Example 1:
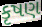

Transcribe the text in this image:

કૃષણ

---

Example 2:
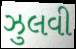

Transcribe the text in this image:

ઝુલવી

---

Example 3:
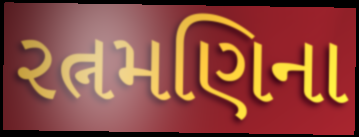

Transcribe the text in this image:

રત્નમણિના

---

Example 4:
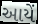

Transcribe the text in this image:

આયેં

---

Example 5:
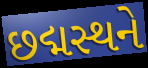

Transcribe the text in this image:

છદ્મસ્થને